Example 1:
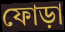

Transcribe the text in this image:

ফোড়া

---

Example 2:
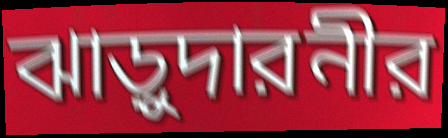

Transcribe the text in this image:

ঝাড়ুদারনীর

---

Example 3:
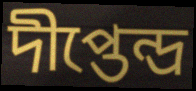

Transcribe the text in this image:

দীপ্তেন্দ্র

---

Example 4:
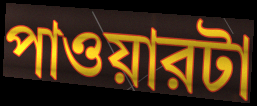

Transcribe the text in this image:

পাওয়ারটা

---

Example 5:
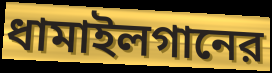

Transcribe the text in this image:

ধামাইলগানের